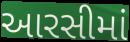
આરસીમાં